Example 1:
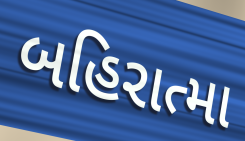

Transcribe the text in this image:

બહિરાત્મા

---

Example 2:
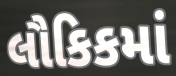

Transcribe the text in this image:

લૌકિકમાં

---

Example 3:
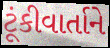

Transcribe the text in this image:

ટૂંકીવાર્તાને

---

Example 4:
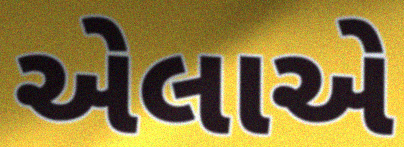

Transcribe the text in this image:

એલાએ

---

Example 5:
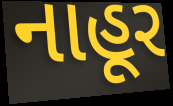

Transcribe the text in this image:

નાહૂર